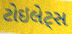
ટોઇલેટ્સ